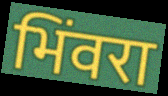
भिंवरा